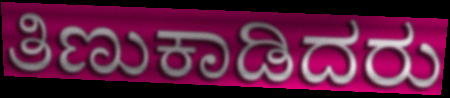
ತಿಣುಕಾಡಿದರು